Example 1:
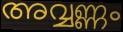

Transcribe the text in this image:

അവ്വണ്ണം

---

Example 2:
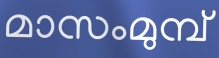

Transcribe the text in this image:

മാസംമുമ്പ്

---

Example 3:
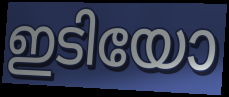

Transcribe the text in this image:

ഇടിയോ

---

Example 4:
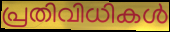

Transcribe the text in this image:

പ്രതിവിധികൾ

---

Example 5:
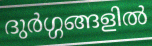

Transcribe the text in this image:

ദുർഗ്ഗങ്ങളിൽ